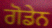
ਗੋਡੇਨ